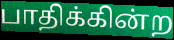
பாதிக்கின்ற